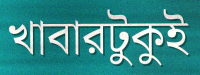
খাবারটুকুই